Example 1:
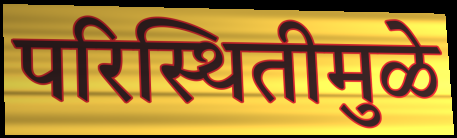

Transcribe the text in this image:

परिस्थितीमुळे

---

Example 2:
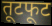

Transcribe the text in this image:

तूटफूट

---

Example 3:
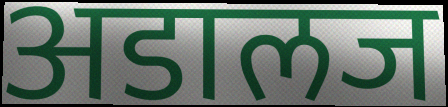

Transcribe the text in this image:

अडालज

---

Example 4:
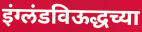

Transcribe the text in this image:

इंग्लंडविऊद्धच्या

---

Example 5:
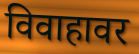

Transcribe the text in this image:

विवाहावर